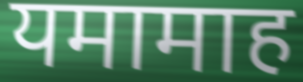
यमामाह